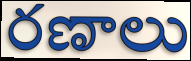
రణాలు